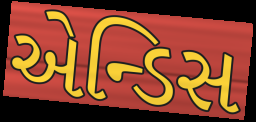
એન્ડિસ